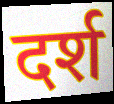
दर्श